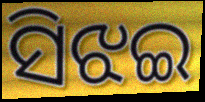
ସିଝଇ